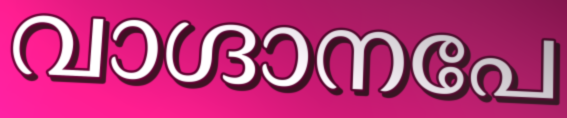
വാഗ്ദാനപേ